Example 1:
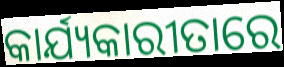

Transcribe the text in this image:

କାର୍ଯ୍ୟକାରୀତାରେ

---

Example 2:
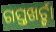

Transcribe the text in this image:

ଗସ୍ତଖର୍ଚ୍ଚା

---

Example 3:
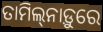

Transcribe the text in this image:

ତାମିଲ୍‌ନାଡ଼ୁରେ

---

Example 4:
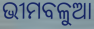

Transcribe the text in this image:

ଭୀମବଳୁଆ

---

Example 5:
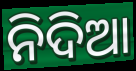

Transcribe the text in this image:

ନିଦିଆ